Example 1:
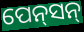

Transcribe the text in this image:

ପେନ୍‍ସନ୍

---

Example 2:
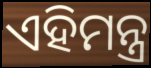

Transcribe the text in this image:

ଏହିମନ୍ତ୍ର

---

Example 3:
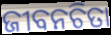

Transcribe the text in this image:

ଜୀବନଚିତା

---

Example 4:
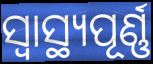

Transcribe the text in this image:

ସ୍ବାସ୍ଥ୍ୟପୂର୍ଣ୍ଣ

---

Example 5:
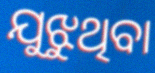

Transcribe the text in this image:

ଯୁଝୁଥିବା